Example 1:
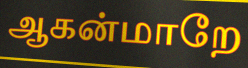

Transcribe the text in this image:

ஆகன்மாறே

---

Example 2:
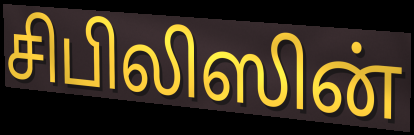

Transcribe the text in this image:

சிபிலிஸின்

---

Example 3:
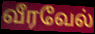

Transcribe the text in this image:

வீரவேல்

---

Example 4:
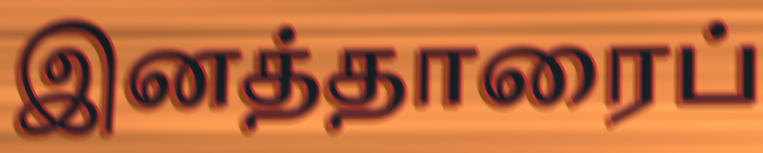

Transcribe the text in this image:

இனத்தாரைப்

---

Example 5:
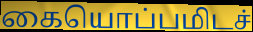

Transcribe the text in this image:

கையொப்பமிடச்